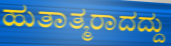
ಹುತಾತ್ಮರಾದದ್ದು